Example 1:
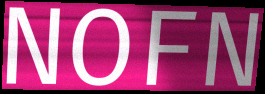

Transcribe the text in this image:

NOFN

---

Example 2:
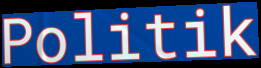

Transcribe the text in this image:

Politik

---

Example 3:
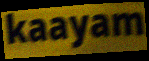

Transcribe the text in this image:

kaayam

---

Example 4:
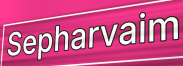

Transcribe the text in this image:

Sepharvaim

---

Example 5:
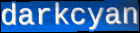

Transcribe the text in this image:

darkcyan